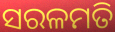
ସରଳମତି